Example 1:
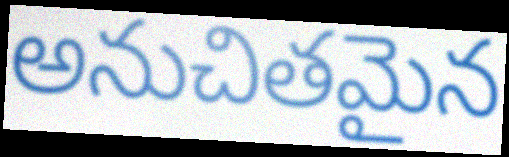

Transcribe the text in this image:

అనుచితమైన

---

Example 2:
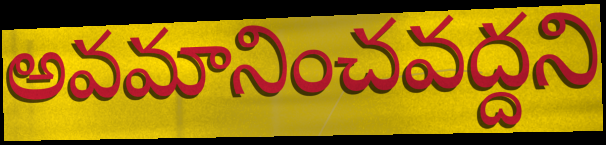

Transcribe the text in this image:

అవమానించవద్దని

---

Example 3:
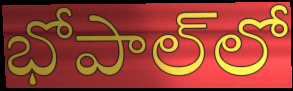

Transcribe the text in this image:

భోపాల్‌లో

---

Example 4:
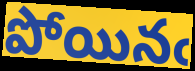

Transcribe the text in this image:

పోయినఁ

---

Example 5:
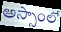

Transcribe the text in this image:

అస్సాంలో